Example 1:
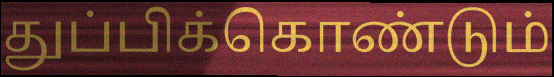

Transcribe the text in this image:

துப்பிக்கொண்டும்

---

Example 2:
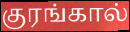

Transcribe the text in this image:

குரங்கால்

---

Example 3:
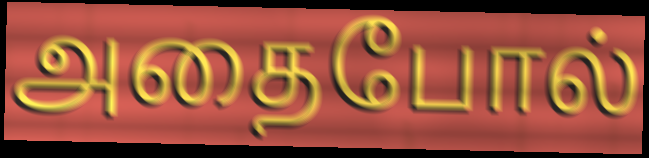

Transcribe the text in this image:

அதைபோல்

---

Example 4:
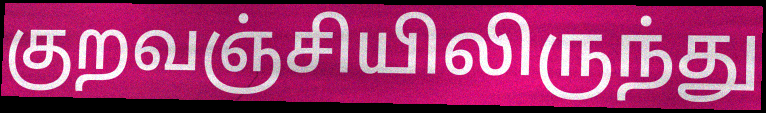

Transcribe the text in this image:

குறவஞ்சியிலிருந்து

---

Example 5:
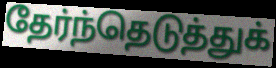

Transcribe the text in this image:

தேர்ந்தெடுத்துக்